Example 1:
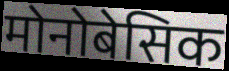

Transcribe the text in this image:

मोनोबेसिक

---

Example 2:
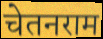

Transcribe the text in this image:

चेतनराम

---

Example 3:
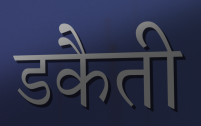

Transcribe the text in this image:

डकैती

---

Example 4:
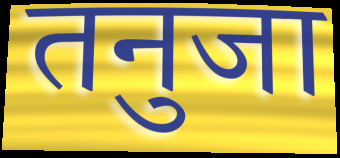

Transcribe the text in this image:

तनुजा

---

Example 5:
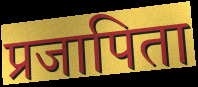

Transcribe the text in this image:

प्रजापिता